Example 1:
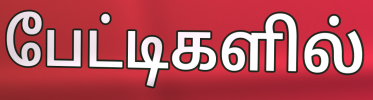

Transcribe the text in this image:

பேட்டிகளில்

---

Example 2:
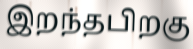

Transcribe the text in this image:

இறந்தபிறகு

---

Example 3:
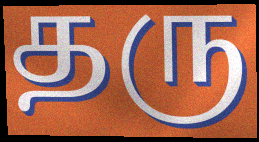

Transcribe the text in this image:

தரு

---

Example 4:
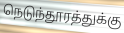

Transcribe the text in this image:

நெடுந்தூரத்துக்கு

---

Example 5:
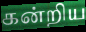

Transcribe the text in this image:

கன்றிய